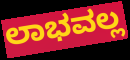
ಲಾಭವಲ್ಲ